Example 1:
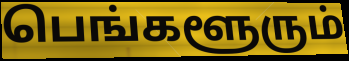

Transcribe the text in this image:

பெங்களூரும்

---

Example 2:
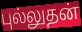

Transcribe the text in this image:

புல்லுதன்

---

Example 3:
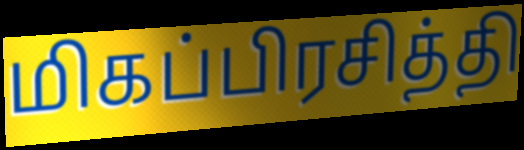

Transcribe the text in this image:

மிகப்பிரசித்தி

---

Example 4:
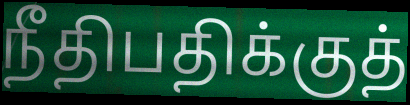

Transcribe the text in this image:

நீதிபதிக்குத்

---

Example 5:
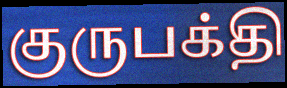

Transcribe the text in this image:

குருபக்தி